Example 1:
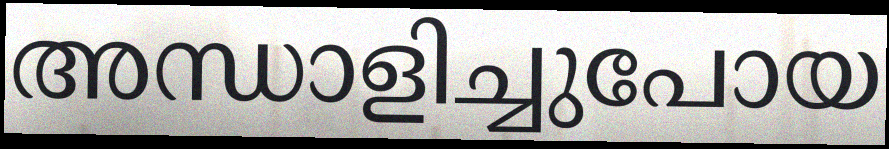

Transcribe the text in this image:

അന്ധാളിച്ചുപോയ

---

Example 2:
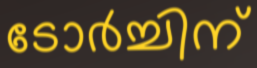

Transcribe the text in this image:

ടോർച്ചിന്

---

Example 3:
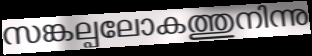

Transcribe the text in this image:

സങ്കല്പലോകത്തുനിന്നു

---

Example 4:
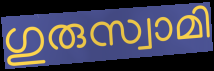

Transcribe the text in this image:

ഗുരുസ്വാമി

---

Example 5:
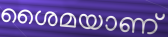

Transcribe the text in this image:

ശൈമയാണ്